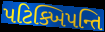
પટિક્ખિપન્તિ